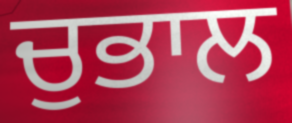
ਚੁਭਾਲ